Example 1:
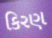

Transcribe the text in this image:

કિરણ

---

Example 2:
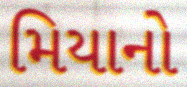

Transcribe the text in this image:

મિયાનો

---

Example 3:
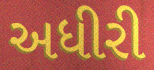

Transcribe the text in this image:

અધીરી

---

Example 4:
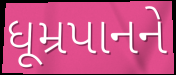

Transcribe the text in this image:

ધૂમ્રપાનને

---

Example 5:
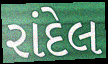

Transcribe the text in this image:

રાંદેલ